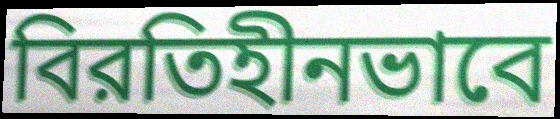
বিরতিহীনভাবে